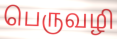
பெருவழி